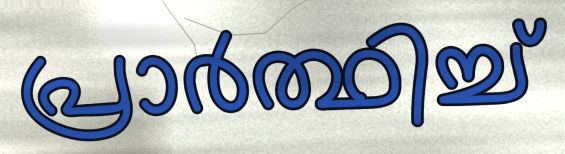
പ്രാർത്ഥിച്ച്